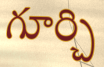
గూర్చి